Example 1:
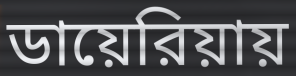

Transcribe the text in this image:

ডায়েরিয়ায়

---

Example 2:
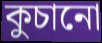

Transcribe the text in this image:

কুচানো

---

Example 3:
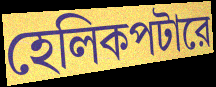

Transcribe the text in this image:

হেলিকপটারে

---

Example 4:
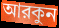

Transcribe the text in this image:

আরকুন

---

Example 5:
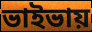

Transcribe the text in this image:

ভাইভায়